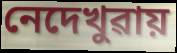
নেদেখুৱায়